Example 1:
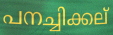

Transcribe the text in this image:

പനച്ചിക്കല്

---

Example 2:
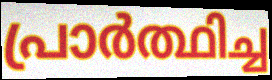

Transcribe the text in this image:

പ്രാർത്ഥിച്ച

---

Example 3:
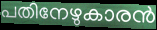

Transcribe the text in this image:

പതിനേഴുകാരൻ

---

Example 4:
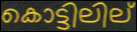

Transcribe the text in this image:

കൊട്ടിലില്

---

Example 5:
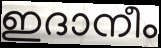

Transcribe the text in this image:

ഇദാനീം